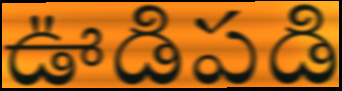
ఊడిపడి